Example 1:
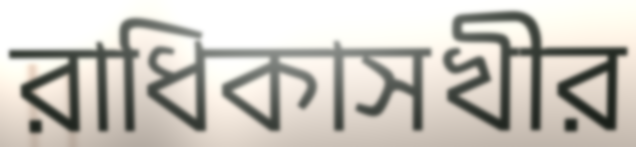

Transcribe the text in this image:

রাধিকাসখীর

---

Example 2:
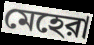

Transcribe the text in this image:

মেহেরা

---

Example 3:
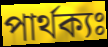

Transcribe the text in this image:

পার্থক্যঃ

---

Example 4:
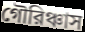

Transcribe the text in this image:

গৌরিঞ্চাস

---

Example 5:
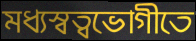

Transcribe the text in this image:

মধ্যস্বত্বভোগীতে